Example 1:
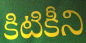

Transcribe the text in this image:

కిటికీని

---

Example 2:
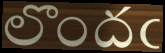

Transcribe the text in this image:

లొందఁ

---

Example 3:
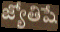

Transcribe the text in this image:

జ్యోతిషే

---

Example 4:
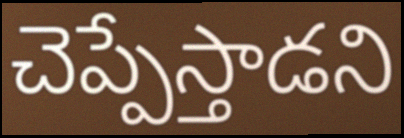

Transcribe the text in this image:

చెప్పేస్తాడని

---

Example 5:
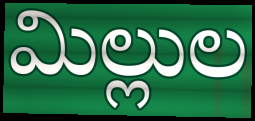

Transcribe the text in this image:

మిల్లుల